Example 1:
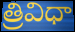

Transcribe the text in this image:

త్రివిధా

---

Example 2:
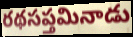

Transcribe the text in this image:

రథసప్తమినాడు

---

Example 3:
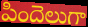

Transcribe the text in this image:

పిందెలుగా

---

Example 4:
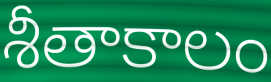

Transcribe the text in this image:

శీతాకాలం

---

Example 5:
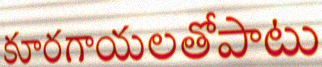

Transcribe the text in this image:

కూరగాయలతోపాటు